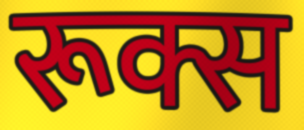
रूक्स